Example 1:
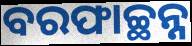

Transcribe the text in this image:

ବରଫାଚ୍ଛନ୍ନ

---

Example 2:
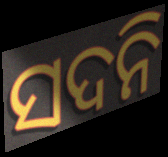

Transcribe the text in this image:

ସଦନି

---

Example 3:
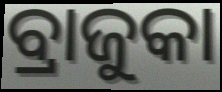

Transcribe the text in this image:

ବ୍ରାଜୁକା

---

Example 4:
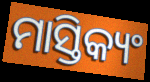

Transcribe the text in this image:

ମାସ୍ତିକ୍ୟଂ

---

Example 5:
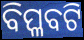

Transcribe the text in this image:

ବିପ୍ଳବଟି